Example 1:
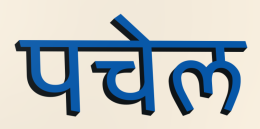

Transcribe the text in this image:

पचेल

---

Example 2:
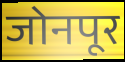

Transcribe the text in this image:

जोनपूर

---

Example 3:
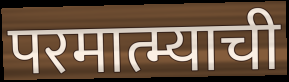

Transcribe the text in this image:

परमात्म्याची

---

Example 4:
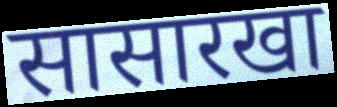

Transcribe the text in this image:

सासारखा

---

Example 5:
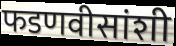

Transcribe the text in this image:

फडणवीसांशी